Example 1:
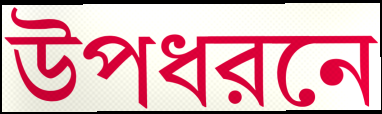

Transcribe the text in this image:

উপধরনে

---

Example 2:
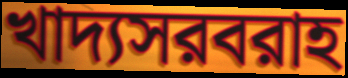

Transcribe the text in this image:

খাদ্যসরবরাহ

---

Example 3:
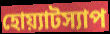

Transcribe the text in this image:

হোয়্যাটস্যাপ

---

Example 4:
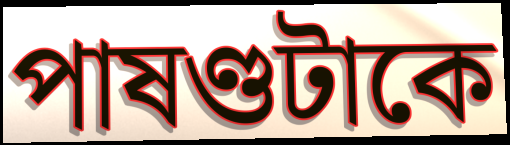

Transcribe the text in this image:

পাষণ্ডটাকে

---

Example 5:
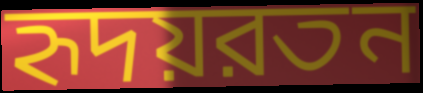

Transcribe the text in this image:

হৃদয়রতন